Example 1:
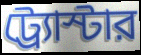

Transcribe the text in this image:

ট্র্যোস্টার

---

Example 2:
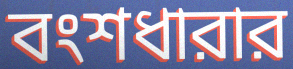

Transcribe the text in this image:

বংশধারার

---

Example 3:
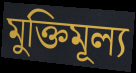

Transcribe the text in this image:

মুক্তিমূল্য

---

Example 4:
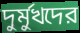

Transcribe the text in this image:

দুর্মুখদের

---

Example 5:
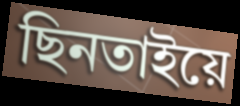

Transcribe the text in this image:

ছিনতাইয়ে